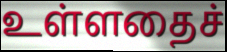
உள்ளதைச்